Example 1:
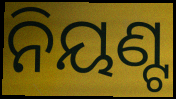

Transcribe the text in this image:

ନିୟଣ୍ଟ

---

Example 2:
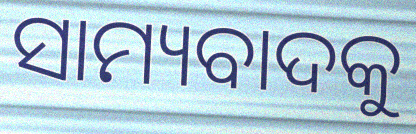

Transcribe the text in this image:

ସାମ୍ୟବାଦକୁ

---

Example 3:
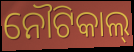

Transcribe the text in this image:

ନୌଟିକାଲ୍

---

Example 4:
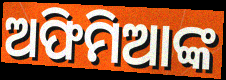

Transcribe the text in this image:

ଅଫିମିଆଙ୍କ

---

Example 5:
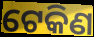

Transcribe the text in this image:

ଟେକିଣ